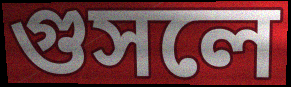
গুসলে